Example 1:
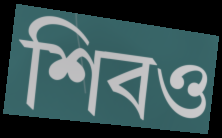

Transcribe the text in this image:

শিবও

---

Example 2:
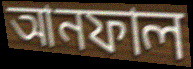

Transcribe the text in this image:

আনফাল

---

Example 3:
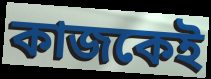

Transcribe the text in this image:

কাজকেই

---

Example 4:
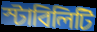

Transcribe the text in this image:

স্টাবিলিটি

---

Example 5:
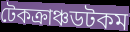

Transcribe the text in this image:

টেকক্রাঞ্চডটকম